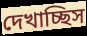
দেখাচ্ছিস